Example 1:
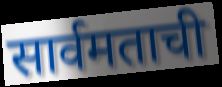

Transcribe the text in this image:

सार्वमताची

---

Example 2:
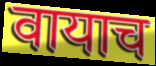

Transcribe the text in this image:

वायाच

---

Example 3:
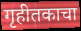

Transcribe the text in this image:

गृहीतकाचा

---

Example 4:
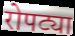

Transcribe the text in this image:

रोपट्या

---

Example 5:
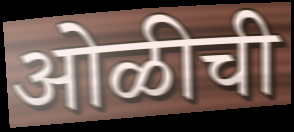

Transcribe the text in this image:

ओळीची